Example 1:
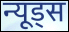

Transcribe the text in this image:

न्यूड्स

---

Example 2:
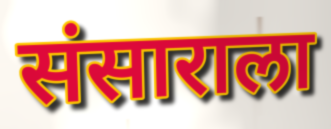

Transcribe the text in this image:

संसाराला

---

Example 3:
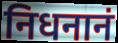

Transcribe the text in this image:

निधनानं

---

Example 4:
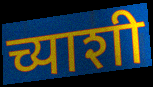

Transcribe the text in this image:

च्याशी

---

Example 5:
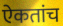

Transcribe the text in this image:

ऐकतांच